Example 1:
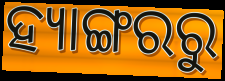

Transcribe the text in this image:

ହ୍ୟାଙ୍ଗରରୁ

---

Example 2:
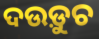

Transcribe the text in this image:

ଦଉଡ଼ୁଚ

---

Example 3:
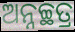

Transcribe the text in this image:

ଅନ୍ନଚ୍ଛତ୍ର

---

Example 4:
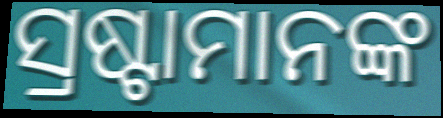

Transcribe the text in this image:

ସ୍ରଷ୍ଟାମାନଙ୍କ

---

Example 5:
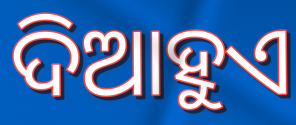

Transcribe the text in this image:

ଦିଆହୁଏ